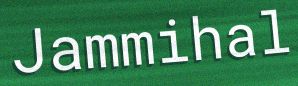
Jammihal